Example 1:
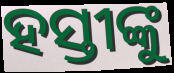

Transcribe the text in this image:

ହସ୍ତୀଙ୍କୁ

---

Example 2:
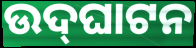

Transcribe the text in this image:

ଉଦ୍‍ଘାଟନ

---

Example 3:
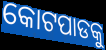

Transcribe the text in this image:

କୋଟପାଡକୁ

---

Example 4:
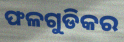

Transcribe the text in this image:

ଫଳଗୁଡିକର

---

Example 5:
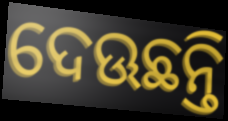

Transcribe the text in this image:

ଦେଊଛନ୍ତି